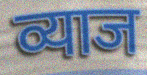
व्याज